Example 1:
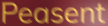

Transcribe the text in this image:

Peasent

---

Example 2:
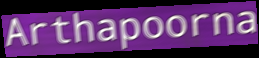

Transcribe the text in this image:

Arthapoorna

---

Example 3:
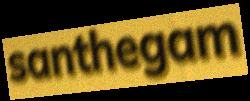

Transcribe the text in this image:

santhegam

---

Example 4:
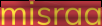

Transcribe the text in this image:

misraa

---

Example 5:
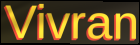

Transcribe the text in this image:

Vivran